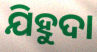
ଯିହୁଦା